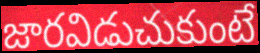
జారవిడుచుకుంటే